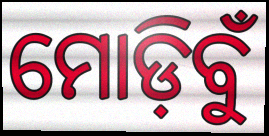
ମୋଡ଼ିବୁଁ